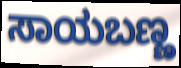
ಸಾಯಬಣ್ಣ